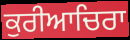
ਕੁਰੀਆਚਿਰਾ